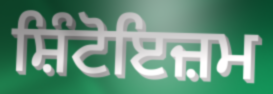
ਸ਼ਿੰਟੋਇਜ਼ਮ